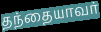
தந்தையாவர்